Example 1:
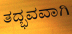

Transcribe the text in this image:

ತದ್ಭವವಾಗಿ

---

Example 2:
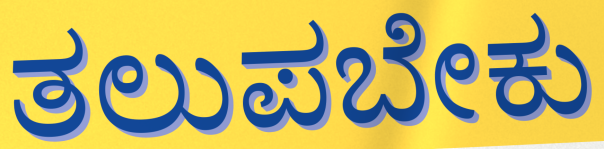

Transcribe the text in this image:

ತಲುಪಬೇಕು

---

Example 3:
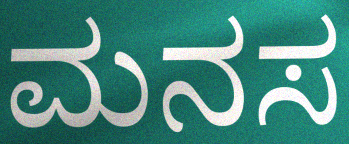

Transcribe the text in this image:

ಮನಸ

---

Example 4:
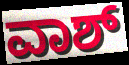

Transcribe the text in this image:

ವಾಶ್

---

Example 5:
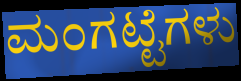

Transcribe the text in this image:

ಮಂಗಟ್ಟೆಗಳು